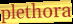
plethora